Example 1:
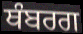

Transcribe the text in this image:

ਥੰਬਰਗ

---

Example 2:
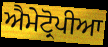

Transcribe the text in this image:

ਐਮੇਟ੍ਰੋਪੀਆ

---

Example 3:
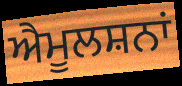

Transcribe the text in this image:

ਐਮੂਲਸ਼ਨਾਂ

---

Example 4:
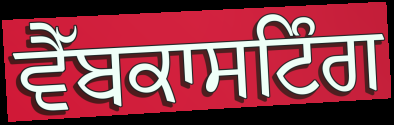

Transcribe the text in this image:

ਵੈੱਬਕਾਸਟਿੰਗ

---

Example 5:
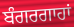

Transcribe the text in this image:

ਬੰਗਰਗਾਹਾਂ